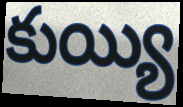
కుయ్యి